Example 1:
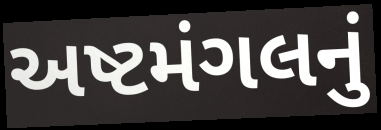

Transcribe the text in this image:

અષ્ટમંગલનું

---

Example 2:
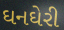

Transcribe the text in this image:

ઘનઘેરી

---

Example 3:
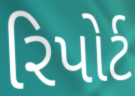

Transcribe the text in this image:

રિપોર્ટ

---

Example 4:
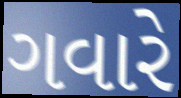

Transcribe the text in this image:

ગવારે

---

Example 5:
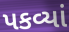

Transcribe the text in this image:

પકવ્યાં